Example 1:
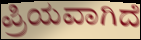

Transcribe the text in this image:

ಪ್ರಿಯವಾಗಿದೆ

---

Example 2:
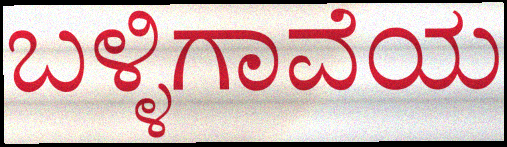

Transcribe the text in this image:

ಬಳ್ಳಿಗಾವೆಯ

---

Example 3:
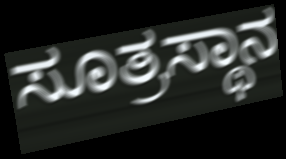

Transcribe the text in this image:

ಸೂತ್ರಸ್ಥಾನ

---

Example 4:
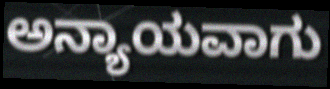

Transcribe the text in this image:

ಅನ್ಯಾಯವಾಗು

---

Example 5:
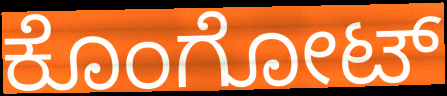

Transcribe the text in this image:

ಕೊಂಗೋಟ್